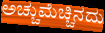
ಅಚ್ಚುಮೆಚ್ಚಿನದು